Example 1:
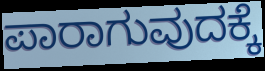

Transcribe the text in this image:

ಪಾರಾಗುವುದಕ್ಕೆ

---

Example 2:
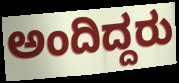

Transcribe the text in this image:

ಅಂದಿದ್ದರು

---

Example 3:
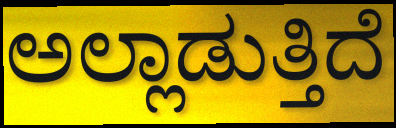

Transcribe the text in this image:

ಅಲ್ಲಾಡುತ್ತಿದೆ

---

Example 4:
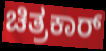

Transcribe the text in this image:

ಚಿತ್ರಕಾರ್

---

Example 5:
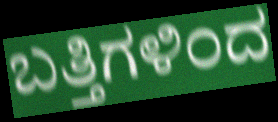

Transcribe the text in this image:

ಬತ್ತಿಗಳಿಂದ